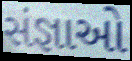
સંજ્ઞાઓ